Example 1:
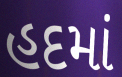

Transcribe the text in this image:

હદમાં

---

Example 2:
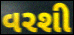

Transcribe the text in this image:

વરશી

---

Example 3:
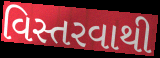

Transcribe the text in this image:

વિસ્તરવાથી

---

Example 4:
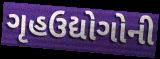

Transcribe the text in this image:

ગૃહઉદ્યોગોની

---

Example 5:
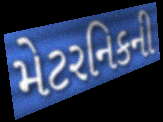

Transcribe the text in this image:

મેટરનિકની